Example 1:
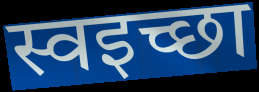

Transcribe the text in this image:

स्वइच्छा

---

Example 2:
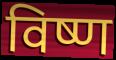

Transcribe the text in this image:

विष्ण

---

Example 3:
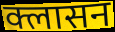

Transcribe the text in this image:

क्लासन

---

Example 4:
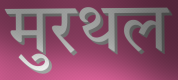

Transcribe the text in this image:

मुरथल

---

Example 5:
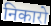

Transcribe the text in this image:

निकारो